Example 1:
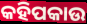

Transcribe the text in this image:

କହିପକାଉ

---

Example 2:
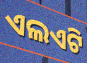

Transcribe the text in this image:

ଏଲଏଟି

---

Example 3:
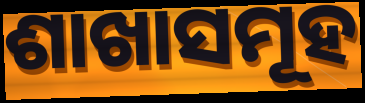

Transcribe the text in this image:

ଶାଖାସମୂହ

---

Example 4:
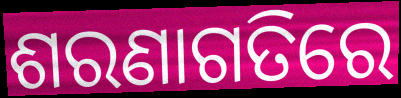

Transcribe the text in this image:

ଶରଣାଗତିରେ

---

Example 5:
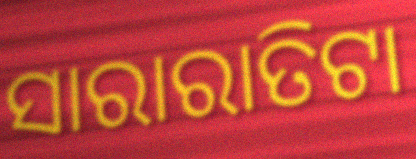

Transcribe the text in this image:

ସାରାରାତିଟା